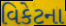
વિકેટના